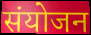
संयोजन